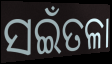
ସଇଁତଳା